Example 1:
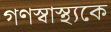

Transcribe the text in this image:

গণস্বাস্থ্যকে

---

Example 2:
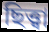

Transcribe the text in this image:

ছিত্ত্বা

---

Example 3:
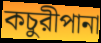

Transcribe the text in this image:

কচুরীপানা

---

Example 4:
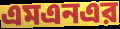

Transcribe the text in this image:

এমএনএর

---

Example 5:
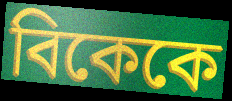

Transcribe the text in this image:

বিকেকে